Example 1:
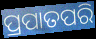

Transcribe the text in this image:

ପ୍ରପାତପରି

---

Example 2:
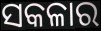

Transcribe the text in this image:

ସକଳାର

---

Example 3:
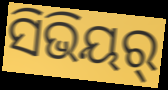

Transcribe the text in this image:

ସିଭିୟର୍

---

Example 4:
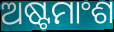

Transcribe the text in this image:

ଅଷ୍ଟମାଂଶ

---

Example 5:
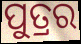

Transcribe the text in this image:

ପୁତ୍ରର